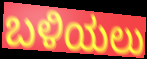
ಬಳಿಯಲು